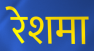
रेशमा